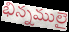
భిన్నములై